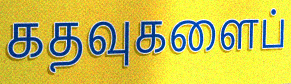
கதவுகளைப்